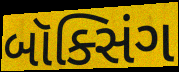
બૉક્સિંગ